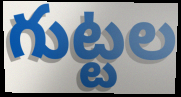
గుట్టల